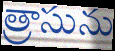
త్రాసును